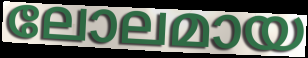
ലോലമായ